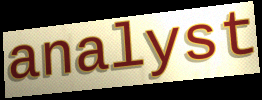
analyst